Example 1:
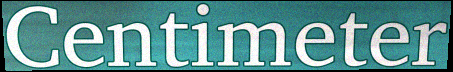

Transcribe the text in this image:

Centimeter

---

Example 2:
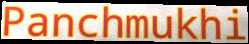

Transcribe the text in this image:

Panchmukhi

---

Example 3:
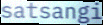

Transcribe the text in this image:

satsangi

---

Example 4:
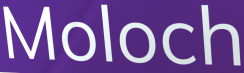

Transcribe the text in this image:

Moloch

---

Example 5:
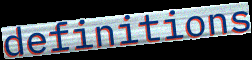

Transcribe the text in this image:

definitions